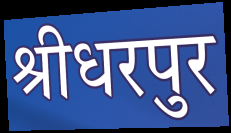
श्रीधरपुर